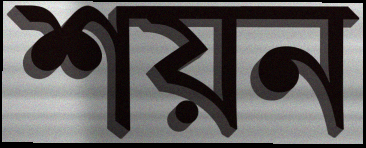
শয়ন